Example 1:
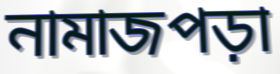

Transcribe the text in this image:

নামাজপড়া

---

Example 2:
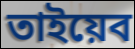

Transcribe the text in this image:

তাইয়েব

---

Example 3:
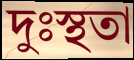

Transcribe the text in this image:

দুঃস্থতা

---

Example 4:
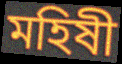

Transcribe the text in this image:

মহিষী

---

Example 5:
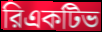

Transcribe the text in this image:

রিএকটিভ